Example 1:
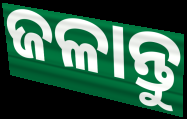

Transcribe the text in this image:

ଜଳାନ୍ତୁ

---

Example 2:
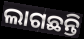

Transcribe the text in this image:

ଲାଗଛନ୍ତି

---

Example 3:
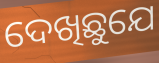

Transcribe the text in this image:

ଦେଖିଛୁଯେ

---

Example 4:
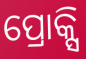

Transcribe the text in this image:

ପ୍ରୋକ୍ସି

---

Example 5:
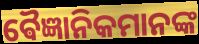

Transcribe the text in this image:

ଵୈଜ୍ଞାନିକମାନଙ୍କ